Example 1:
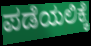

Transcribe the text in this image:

ಪಡೆಯಲಿಕ್ಕೆ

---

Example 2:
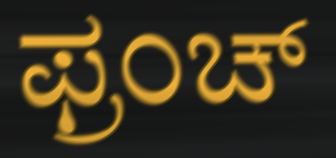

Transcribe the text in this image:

ಫ್ರಂಚ್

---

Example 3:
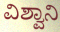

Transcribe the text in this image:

ವಿಶ್ವಾನಿ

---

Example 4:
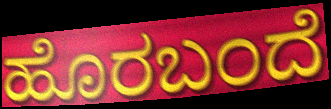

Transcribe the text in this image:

ಹೊರಬಂದೆ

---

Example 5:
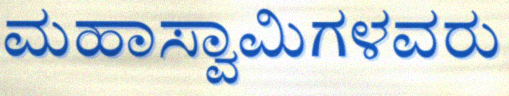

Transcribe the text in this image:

ಮಹಾಸ್ವಾಮಿಗಳವರು